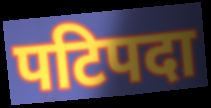
पटिपदा